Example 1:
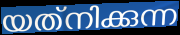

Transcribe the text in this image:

യത്‌നിക്കുന്ന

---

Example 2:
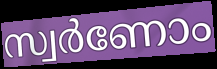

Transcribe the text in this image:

സ്വർണോം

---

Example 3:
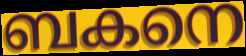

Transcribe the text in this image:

ബകനെ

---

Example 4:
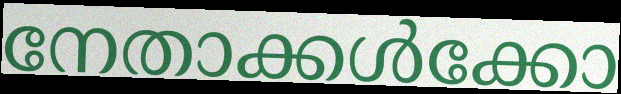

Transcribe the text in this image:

നേതാക്കൾക്കോ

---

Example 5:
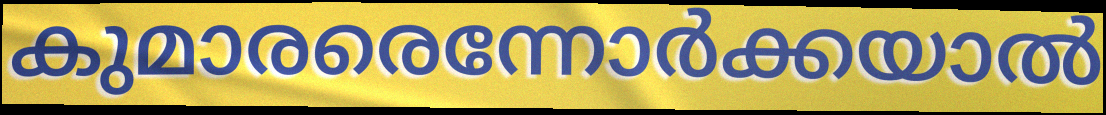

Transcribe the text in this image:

കുമാരരെന്നോർക്കയാൽ